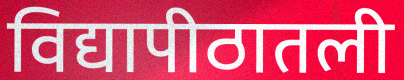
विद्यापीठातली